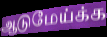
ஆடுமேய்க்க